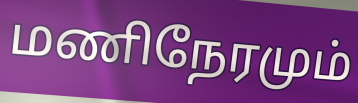
மணிநேரமும்